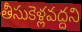
తీసుకెళ్లవద్దని